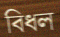
বিধল